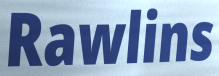
Rawlins